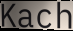
Kach